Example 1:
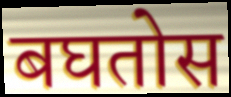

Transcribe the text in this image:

बघतोस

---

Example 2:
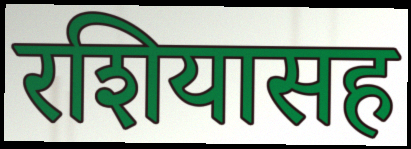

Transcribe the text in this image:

रशियासह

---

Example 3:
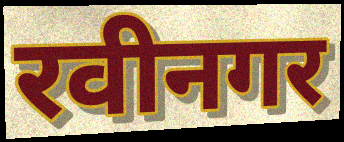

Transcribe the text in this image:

रवीनगर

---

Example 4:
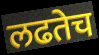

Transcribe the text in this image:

लढतेच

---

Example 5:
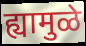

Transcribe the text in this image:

ह्यामुळे